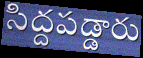
సిద్దపడ్డారు